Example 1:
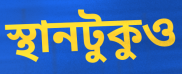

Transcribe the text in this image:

স্থানটুকুও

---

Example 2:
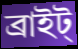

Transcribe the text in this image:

ব্রাইট্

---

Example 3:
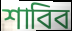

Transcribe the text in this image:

শাবিব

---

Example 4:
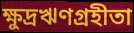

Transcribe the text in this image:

ক্ষুদ্রঋণগ্রহীতা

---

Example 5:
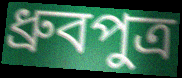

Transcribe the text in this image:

ধ্রুবপুত্র